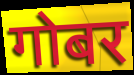
गोबर